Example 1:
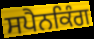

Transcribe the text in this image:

ਸਪੈਨਕਿੰਗ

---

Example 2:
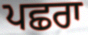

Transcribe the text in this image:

ਪਛਰਾ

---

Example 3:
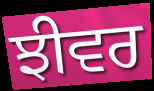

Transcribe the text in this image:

ਝੀਵਰ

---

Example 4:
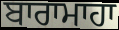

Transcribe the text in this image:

ਬਾਰਾਮਾਹਾ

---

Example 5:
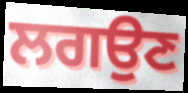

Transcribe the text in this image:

ਲਗਉਣ